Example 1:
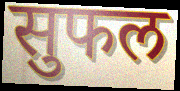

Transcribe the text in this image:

सुफल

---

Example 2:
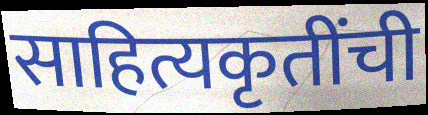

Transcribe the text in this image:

साहित्यकृतींची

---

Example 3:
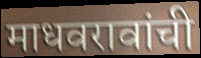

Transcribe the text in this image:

माधवरावांची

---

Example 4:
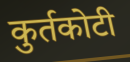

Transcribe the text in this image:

कुर्तकोटी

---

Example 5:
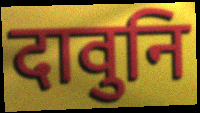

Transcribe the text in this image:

दावुनि